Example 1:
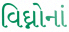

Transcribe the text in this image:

વિઘ્નોનાં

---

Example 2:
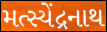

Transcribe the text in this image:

મત્સ્યેંદ્રનાથ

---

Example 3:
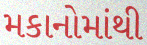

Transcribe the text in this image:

મકાનોમાંથી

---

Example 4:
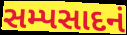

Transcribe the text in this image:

સમ્પસાદનં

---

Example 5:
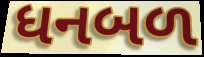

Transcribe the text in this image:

ધનબળ